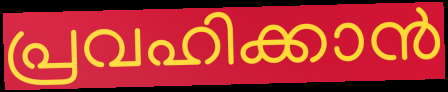
പ്രവഹിക്കാൻ